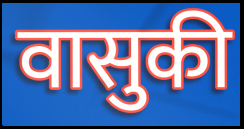
वासुकी